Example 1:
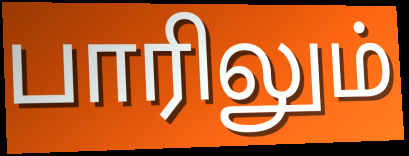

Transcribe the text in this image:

பாரிலும்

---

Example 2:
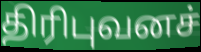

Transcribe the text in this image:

திரிபுவனச்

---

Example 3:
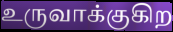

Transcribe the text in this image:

உருவாக்குகிற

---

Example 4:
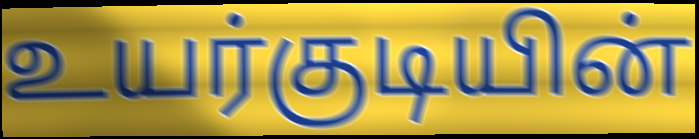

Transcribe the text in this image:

உயர்குடியின்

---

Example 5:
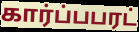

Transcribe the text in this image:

கார்ப்பபரட்